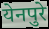
येनपुरे